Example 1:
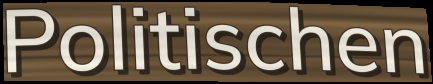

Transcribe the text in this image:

Politischen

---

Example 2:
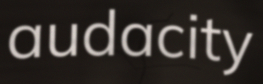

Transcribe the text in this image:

audacity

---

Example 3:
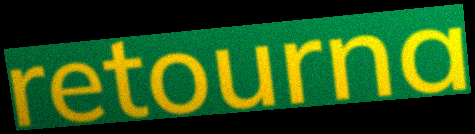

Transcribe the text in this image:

retourna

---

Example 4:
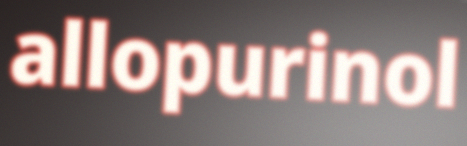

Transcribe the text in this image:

allopurinol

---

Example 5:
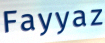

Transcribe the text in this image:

Fayyaz